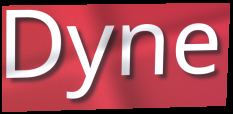
Dyne